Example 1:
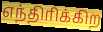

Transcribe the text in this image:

எந்திரிக்கிற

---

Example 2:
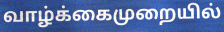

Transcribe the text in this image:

வாழ்க்கைமுறையில்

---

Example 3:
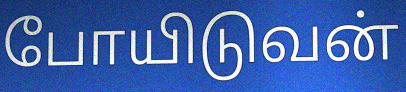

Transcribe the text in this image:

போயிடுவன்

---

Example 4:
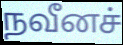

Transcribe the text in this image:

நவீனச்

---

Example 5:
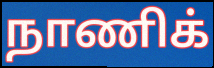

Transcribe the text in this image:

நாணிக்